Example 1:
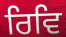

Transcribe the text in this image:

ਰਿਵਿ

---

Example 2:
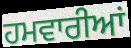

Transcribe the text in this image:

ਹਮਵਾਰੀਆਂ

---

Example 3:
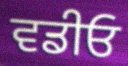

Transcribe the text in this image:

ਵਡੀਓ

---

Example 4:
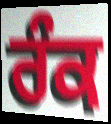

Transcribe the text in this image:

ਰੰਕ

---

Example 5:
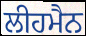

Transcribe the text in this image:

ਲੀਹਮੈਨ